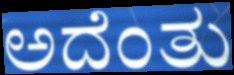
ಅದೆಂತು